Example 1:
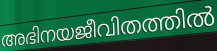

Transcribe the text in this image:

അഭിനയജീവിതത്തിൽ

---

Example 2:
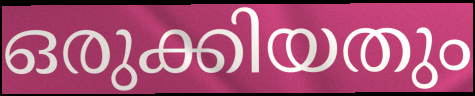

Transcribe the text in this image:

ഒരുക്കിയതും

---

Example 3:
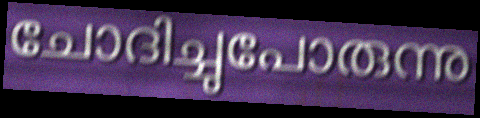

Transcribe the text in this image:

ചോദിച്ചുപോരുന്നു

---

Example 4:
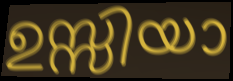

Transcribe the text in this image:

ഉസ്സിയാ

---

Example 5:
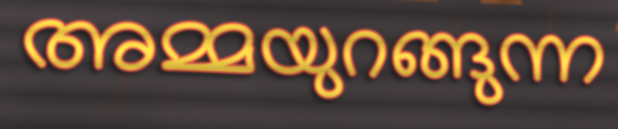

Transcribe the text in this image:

അമ്മയുറങ്ങുന്ന